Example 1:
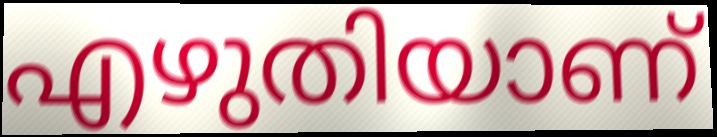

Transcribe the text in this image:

എഴുതിയാണ്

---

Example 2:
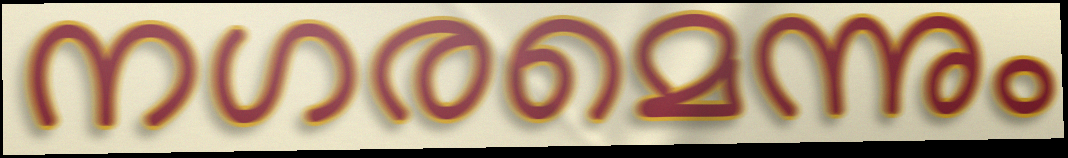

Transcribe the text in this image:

നഗരമെന്നും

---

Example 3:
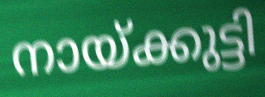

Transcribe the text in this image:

നായ്ക്കുട്ടി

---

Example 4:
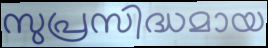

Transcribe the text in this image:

സുപ്രസിദ്ധമായ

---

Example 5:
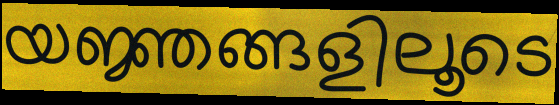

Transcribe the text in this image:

യജ്ഞങ്ങളിലൂടെ